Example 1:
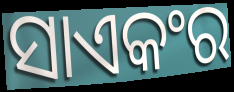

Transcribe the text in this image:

ସାଏକଂର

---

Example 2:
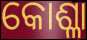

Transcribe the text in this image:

କୋଶ୍ଳା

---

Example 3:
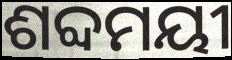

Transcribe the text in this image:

ଶବ୍ଦମୟୀ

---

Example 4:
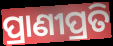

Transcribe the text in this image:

ପ୍ରାଣୀପ୍ରତି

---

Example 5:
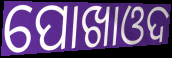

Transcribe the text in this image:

ପୋଖାଓଦ